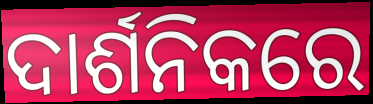
ଦାର୍ଶନିକରେ